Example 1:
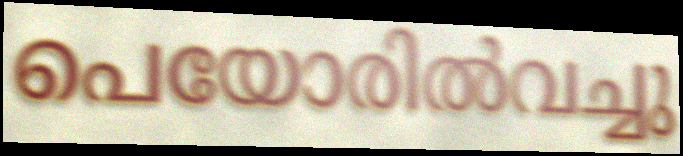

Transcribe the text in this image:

പെയോരിൽവച്ചു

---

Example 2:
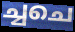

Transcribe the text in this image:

ച്ചചെ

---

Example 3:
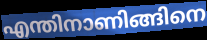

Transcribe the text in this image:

എന്തിനാണിങ്ങിനെ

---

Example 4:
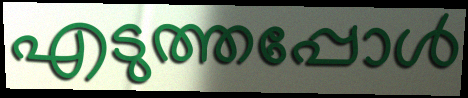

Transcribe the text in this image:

എടുത്തപ്പോൾ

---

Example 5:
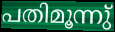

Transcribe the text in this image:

പതിമൂന്നു്